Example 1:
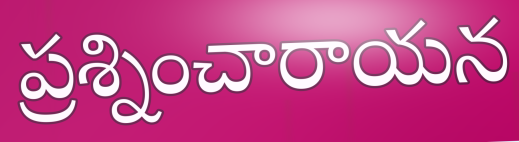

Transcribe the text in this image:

ప్రశ్నించారాయన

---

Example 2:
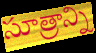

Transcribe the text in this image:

సూత్రాన్ని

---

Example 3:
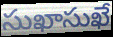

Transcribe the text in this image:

సుఖాసుఖే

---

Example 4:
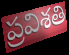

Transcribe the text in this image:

ప్రవిశతి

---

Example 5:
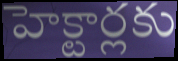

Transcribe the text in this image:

హెక్టార్లకు